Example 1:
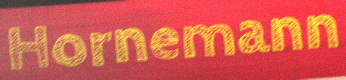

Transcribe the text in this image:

Hornemann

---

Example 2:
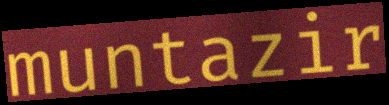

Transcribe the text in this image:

muntazir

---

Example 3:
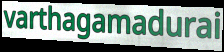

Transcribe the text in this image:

varthagamadurai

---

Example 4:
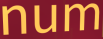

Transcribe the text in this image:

num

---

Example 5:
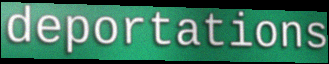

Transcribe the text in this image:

deportations